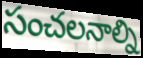
సంచలనాల్ని